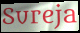
Sureja